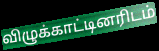
விழுக்காட்டினரிடம்